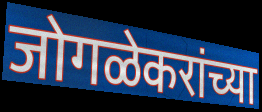
जोगळेकरांच्या